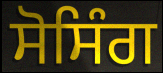
ਸੋਸਿੰਗ